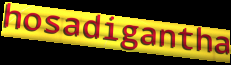
hosadigantha